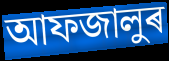
আফজালুৰ